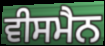
ਵੀਸਮੈਨ